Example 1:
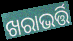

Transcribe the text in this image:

ଖରାଭର୍ତ୍ତି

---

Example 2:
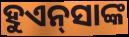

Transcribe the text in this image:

ହୁଏନ୍‍ସାଙ୍କ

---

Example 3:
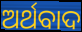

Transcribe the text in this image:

ଅର୍ଥବାଦ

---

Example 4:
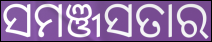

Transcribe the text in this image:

ସମଞ୍ଜସତାର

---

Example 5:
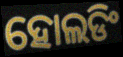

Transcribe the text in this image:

ହୋଲଡିଂ